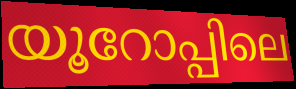
യൂറോപ്പിലെ